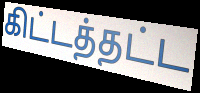
கிட்டத்தட்ட